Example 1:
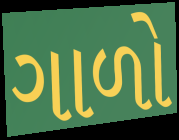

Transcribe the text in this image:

ગાળો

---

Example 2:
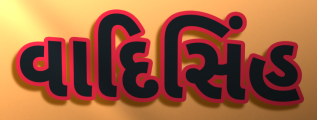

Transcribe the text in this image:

વાદિસિંહ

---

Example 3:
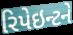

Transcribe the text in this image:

રિપેઇન્ટને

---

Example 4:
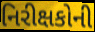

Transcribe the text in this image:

નિરીક્ષકોની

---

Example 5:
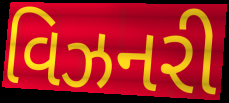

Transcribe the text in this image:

વિઝનરી